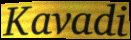
Kavadi